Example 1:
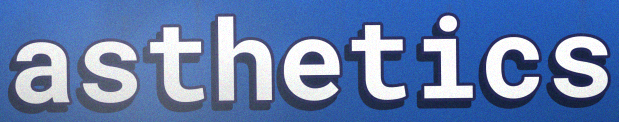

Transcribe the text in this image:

asthetics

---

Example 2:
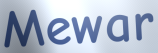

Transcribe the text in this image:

Mewar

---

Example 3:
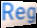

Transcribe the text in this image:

Reg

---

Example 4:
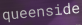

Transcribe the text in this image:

queenside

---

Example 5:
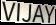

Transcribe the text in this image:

VIJAY